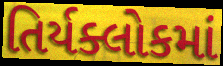
તિર્યક્લોકમાં